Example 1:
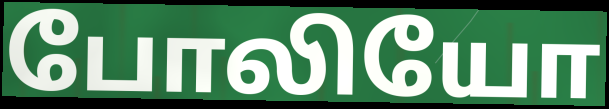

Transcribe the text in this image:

போலியோ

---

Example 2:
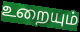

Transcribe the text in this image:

உறையும்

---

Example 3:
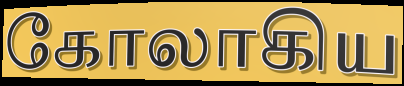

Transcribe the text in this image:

கோலாகிய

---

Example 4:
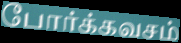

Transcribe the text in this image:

போர்க்கவசம்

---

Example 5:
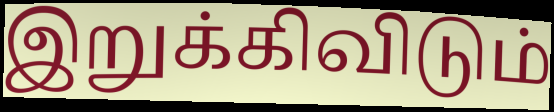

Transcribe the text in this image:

இறுக்கிவிடும்